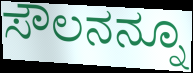
ಸೌಲನನ್ನೂ